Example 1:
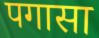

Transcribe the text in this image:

पगासा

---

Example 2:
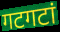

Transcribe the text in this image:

गटगटां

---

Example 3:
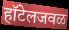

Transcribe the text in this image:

हॉटेलजवळ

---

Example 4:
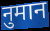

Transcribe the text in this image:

नुमान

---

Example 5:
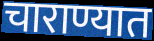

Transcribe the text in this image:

चाराण्यात